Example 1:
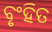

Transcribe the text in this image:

ବୃଂହିତ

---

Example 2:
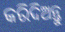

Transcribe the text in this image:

କରିଦିଅନ୍ତୁ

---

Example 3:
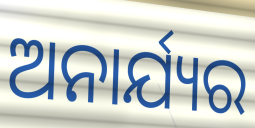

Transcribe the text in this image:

ଅନାର୍ଯ୍ୟର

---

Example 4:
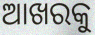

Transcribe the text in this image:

ଆଖରକୁ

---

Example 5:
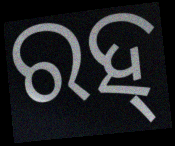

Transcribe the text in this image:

ରହ୍